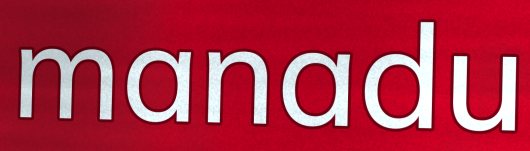
manadu